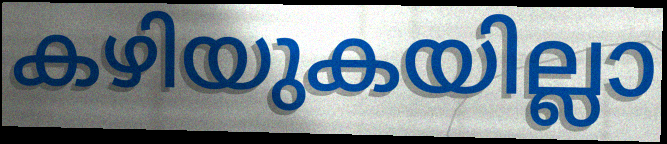
കഴിയുകയില്ലാ